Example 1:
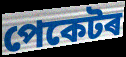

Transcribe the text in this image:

পেকেটৰ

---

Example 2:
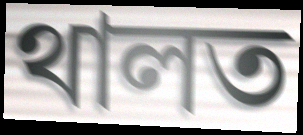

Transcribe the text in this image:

থালত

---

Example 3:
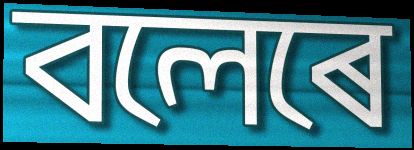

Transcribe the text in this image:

বলেৰে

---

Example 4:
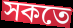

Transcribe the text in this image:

সকতে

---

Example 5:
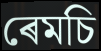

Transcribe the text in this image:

ৰেমচি